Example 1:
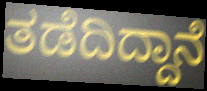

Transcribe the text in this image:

ತಡೆದಿದ್ದಾನೆ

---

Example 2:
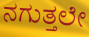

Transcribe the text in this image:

ನಗುತ್ತಲೇ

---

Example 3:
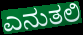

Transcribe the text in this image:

ಎನುತಲಿ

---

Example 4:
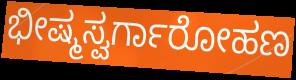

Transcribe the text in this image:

ಭೀಷ್ಮಸ್ವರ್ಗಾರೋಹಣ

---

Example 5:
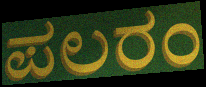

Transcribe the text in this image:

ಪಲರಂ